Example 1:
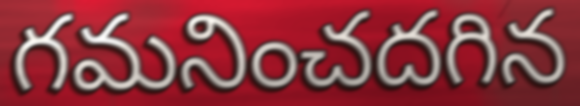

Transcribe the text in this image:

గమనించదగిన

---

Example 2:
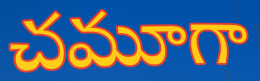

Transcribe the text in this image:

చమూగా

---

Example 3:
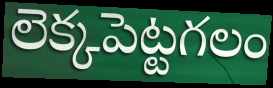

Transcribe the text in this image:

లెక్కపెట్టగలం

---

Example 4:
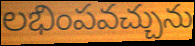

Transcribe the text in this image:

లభింపవచ్చును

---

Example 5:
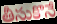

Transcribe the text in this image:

తీసుకొనే